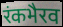
रंकभैरव